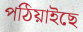
পঠিয়াইছে